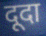
दूदा